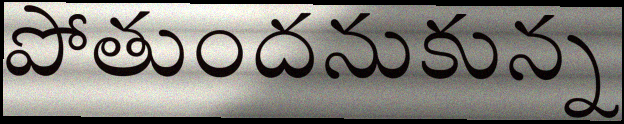
పోతుందనుకున్న